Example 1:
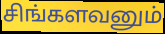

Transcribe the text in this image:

சிங்களவனும்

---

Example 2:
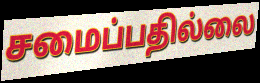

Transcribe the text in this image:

சமைப்பதில்லை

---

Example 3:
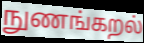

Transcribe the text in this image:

நுணங்கறல்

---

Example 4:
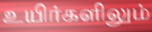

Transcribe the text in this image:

உயிர்களிலும்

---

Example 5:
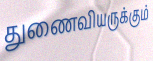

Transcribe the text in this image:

துணைவியருக்கும்